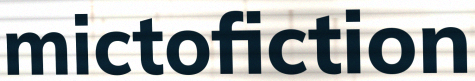
mictofiction